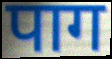
पाग